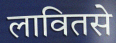
लावितसे